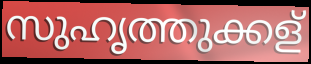
സുഹൃത്തുക്കള്